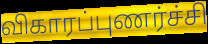
விகாரப்புணர்ச்சி